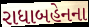
રાધાબહેનના